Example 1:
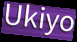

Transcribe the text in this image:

Ukiyo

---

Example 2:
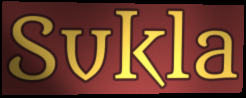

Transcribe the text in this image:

Sukla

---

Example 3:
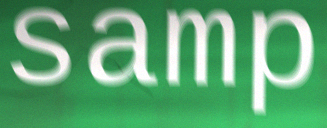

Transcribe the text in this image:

samp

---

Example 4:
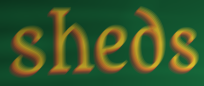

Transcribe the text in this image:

sheds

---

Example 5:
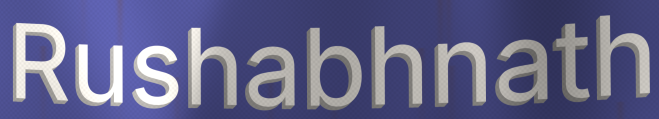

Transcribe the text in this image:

Rushabhnath